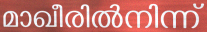
മാഖീരിൽനിന്ന്